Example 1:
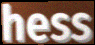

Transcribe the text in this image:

hess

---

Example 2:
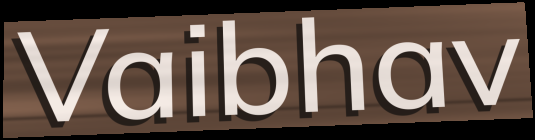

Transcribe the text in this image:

Vaibhav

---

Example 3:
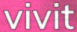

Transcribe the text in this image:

vivit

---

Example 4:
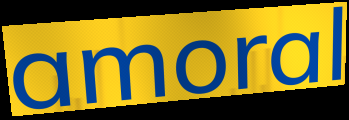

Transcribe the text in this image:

amoral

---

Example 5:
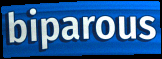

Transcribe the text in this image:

biparous